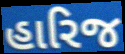
હારિજ